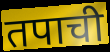
तपाची